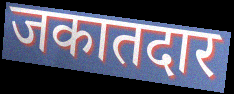
जकातदार